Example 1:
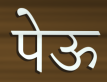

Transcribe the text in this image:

पेऊ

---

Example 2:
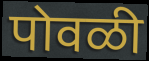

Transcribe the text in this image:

पोवळी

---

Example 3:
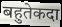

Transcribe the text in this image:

बहुतेकदा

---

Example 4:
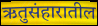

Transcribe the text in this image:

ऋतुसंहारातील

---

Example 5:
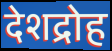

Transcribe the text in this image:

देशद्रोह